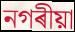
নগৰীয়া